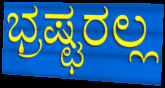
ಭ್ರಷ್ಟರಲ್ಲ